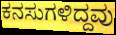
ಕನಸುಗಳಿದ್ದವು